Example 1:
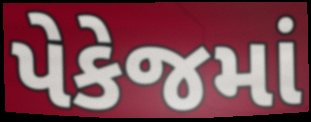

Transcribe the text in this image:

પેકેજમાં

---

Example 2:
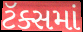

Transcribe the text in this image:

ટૅક્સમાં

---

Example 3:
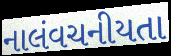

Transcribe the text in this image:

નાલંવચનીયતા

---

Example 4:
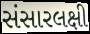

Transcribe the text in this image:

સંસારલક્ષી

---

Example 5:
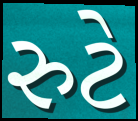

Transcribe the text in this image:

રુટે